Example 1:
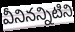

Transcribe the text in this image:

వీనినన్నిటిని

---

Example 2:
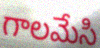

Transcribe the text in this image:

గాలమేసి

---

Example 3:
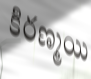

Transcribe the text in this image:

కిరణ్మయి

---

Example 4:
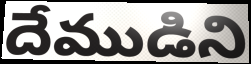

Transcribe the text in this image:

దేముడిని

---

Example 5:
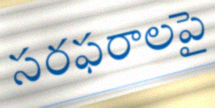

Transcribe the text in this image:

సరఫరాలపై